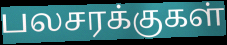
பலசரக்குகள்